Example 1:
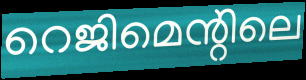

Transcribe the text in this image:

റെജിമെന്റിലെ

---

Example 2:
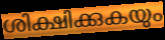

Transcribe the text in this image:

ശിക്ഷിക്കുകയും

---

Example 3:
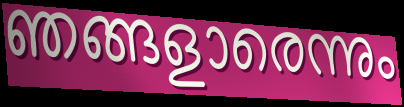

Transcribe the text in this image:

ഞങ്ങളാരെന്നും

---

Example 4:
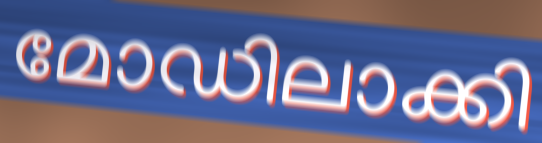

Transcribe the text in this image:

മോഡിലാക്കി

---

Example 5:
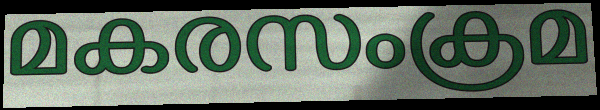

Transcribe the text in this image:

മകരസംക്രമ